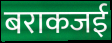
बराकजई